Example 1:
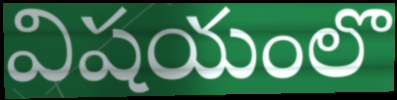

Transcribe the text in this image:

విషయంలొ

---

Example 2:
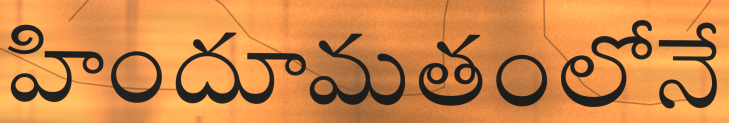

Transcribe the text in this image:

హిందూమతంలోనే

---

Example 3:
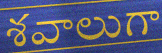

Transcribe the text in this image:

శవాలుగా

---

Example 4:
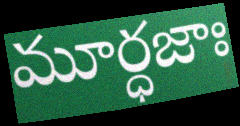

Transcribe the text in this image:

మూర్ధజాః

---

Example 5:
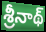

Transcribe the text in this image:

శ్రీనాథ్